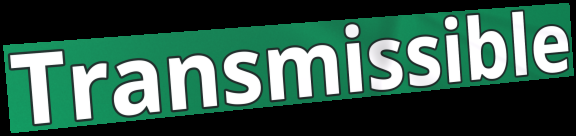
Transmissible